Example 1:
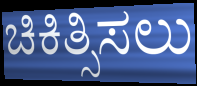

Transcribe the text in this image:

ಚಿಕಿತ್ಸಿಸಲು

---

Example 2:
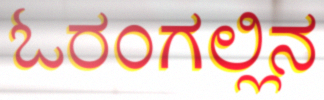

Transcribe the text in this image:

ಓರಂಗಲ್ಲಿನ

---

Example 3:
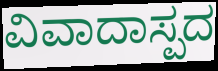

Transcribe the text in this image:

ವಿವಾದಾಸ್ಪದ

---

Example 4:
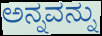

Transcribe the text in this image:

ಅನ್ನವನ್ನು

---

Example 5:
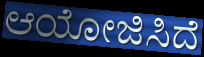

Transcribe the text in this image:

ಆಯೋಜಿಸಿದೆ